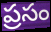
ప్రసం